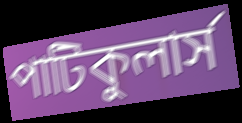
পাটিকুলার্স